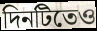
দিনটিতেও